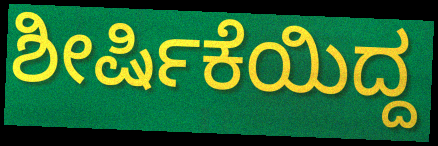
ಶೀರ್ಷಿಕೆಯಿದ್ದ